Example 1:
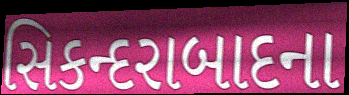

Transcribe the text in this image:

સિકન્દરાબાદના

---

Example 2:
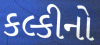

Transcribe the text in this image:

કલ્કીનો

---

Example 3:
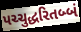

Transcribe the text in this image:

પચ્ચુદ્ધરિતબ્બં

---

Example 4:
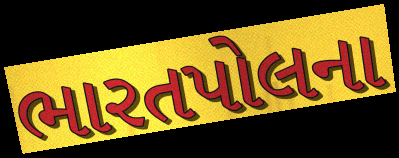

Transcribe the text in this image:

ભારતપોલના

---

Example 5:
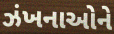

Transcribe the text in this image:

ઝંખનાઓને